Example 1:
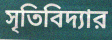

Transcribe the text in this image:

সৃতিবিদ্যার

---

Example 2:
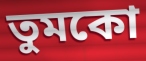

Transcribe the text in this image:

তুমকো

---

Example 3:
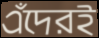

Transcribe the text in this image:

এঁদেরই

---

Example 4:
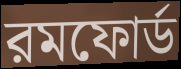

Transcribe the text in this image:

রমফোর্ড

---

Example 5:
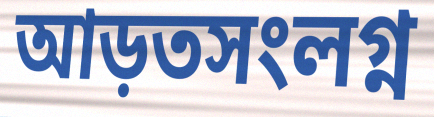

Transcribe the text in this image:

আড়তসংলগ্ন